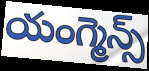
యంగ్మెన్స్